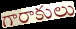
గారాకులు